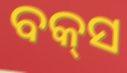
ବକ୍‌ସ